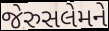
જેરુસલેમને